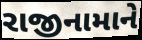
રાજીનામાને